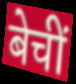
बेचीं